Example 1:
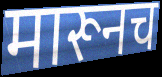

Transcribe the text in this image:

मारूनच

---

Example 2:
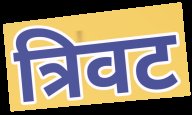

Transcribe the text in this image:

त्रिवट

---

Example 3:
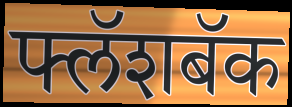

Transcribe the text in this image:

फ्लॅशबॅक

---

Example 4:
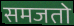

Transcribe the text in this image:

समजतो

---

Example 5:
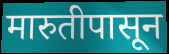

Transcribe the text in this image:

मारुतीपासून